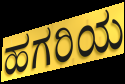
ಹಗರಿಯ